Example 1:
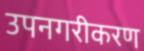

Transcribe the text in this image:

उपनगरीकरण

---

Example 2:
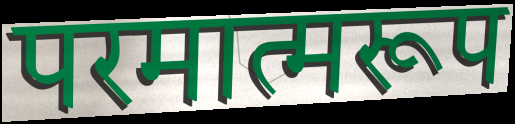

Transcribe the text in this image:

परमात्मरूप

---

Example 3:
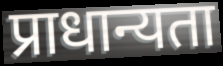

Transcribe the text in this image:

प्राधान्यता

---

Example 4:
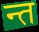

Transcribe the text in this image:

न्त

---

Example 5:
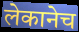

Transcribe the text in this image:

लेकानेच